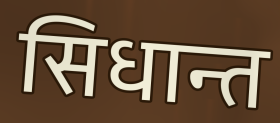
सिधान्त